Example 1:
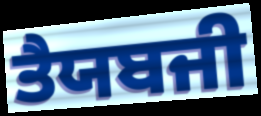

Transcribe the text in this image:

ਤੈਯਬਜੀ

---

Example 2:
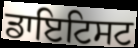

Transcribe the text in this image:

ਡਾਇਟਿਸਟ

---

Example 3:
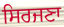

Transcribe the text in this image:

ਸਿਰਜਣਾ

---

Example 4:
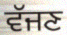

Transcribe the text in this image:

ਵੱਜਣ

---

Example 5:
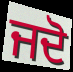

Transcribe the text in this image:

ਜਦੋ